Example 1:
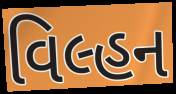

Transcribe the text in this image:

વિલ્હન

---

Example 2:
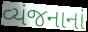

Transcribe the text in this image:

વ્યંજનાનાં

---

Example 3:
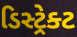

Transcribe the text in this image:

ડિસ્ટ્રેક્ટ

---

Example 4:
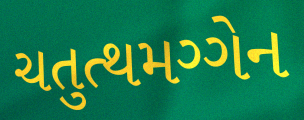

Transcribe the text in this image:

ચતુત્થમગ્ગેન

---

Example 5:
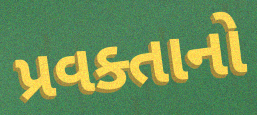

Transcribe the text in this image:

પ્રવક્તાનો